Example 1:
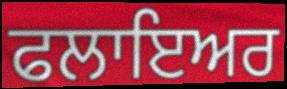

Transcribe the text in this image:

ਫਲਾਇਅਰ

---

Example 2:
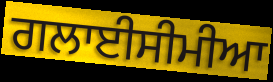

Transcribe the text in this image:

ਗਲਾਈਸੀਮੀਆ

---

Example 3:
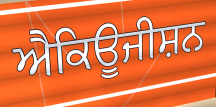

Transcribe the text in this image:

ਐਕਿਊਜੀਸ਼ਨ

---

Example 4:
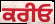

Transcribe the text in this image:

ਕਰੀਓ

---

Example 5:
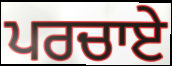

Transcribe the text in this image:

ਪਰਚਾਏ